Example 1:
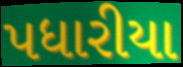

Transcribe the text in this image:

પધારીયા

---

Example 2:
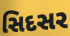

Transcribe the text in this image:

સિદસર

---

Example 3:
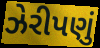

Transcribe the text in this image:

ઝેરીપણું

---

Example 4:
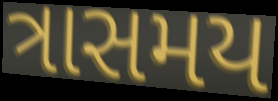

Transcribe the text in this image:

ત્રાસમય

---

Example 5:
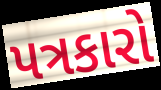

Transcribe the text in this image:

પત્રકારો